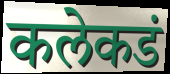
कलेकडं